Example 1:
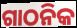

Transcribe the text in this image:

ଗାଠନିକ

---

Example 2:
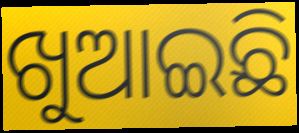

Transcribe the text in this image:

ଖୁଆଇଛି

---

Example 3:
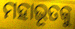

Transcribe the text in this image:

ମହାଭୂତକୁ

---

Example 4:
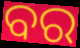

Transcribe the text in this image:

ବର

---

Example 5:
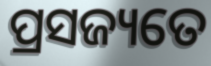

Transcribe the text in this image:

ପ୍ରସଜ୍ୟତେ